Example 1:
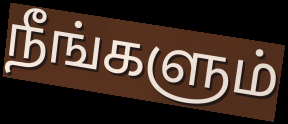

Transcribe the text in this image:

நீங்களும்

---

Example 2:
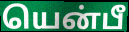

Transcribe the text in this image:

யென்பீ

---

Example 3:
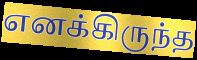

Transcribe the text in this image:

எனக்கிருந்த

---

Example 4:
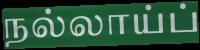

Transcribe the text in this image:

நல்லாய்ப்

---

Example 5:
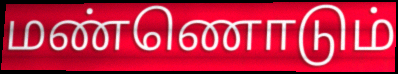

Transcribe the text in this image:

மண்ணொடும்